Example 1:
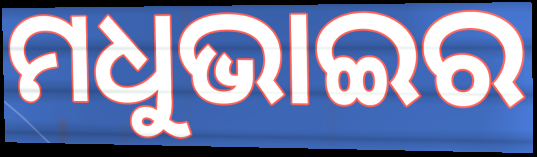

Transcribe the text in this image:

ମଧୁଭାଇର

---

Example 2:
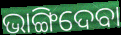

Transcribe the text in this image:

ଭାଙ୍ଗିଦେବା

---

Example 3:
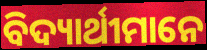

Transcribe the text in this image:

ବିଦ୍ୟାର୍ଥୀମାନେ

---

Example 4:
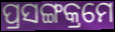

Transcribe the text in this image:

ପ୍ରସଙ୍ଗକ୍ରମେ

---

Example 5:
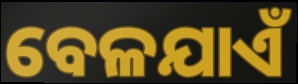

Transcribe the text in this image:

ବେଳଯାଏଁ